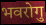
भवरोगु